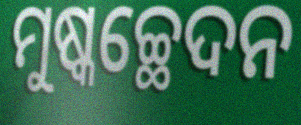
ମୁଷ୍କଚ୍ଛେଦନ